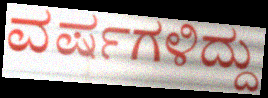
ವರ್ಷಗಳಿದ್ದು